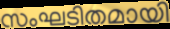
സംഘടിതമായി